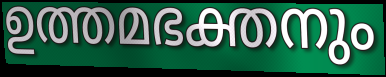
ഉത്തമഭക്തനും